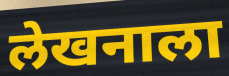
लेखनाला